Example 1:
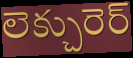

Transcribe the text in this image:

లెక్చురెర్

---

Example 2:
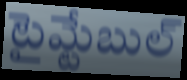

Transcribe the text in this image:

టైమ్టేబుల్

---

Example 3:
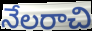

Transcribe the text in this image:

నేలరాచి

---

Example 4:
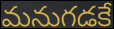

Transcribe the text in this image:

మనుగడకే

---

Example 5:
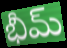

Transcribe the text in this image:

భీమ్